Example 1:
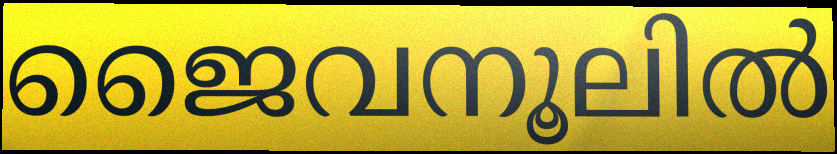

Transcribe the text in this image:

ജൈവനൂലിൽ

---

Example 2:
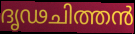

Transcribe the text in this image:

ദൃഢചിത്തൻ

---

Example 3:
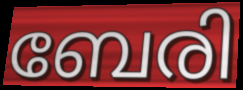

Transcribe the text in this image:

ബേരി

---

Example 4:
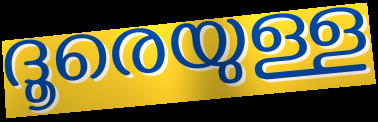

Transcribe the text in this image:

ദൂരെയുള്ള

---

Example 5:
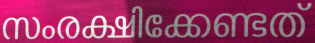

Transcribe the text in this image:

സംരക്ഷിക്കേണ്ടത്